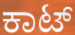
ಕಾಟ್